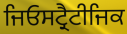
ਜਿਓਸਟ੍ਰੈਟੀਜਿਕ